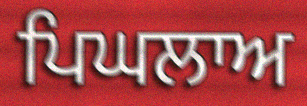
ਪਿਘਲਾਅ